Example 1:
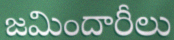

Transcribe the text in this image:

జమిందారీలు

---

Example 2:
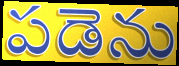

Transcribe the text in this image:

పడెను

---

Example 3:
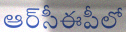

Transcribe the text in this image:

ఆర్‌సీఈపీలో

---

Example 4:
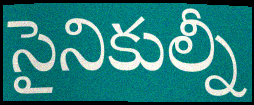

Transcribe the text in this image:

సైనికుల్నీ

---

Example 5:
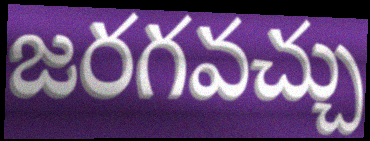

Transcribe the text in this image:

జరగవచ్చు